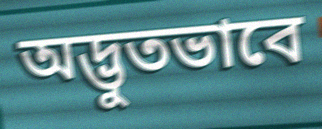
অদ্ভুতভাবে